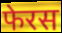
फेरस